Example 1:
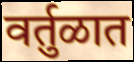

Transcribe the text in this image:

वर्तुळात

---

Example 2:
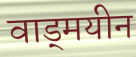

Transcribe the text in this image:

वाड्‌मयीन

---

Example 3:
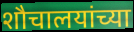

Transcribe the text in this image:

शौचालयांच्या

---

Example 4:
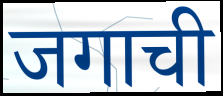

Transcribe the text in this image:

जगाची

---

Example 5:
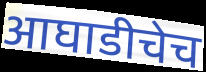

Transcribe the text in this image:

आघाडीचेच